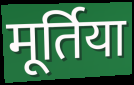
मूर्तिया